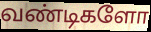
வண்டிகளோ